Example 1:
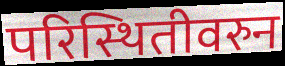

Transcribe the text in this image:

परिस्थितीवरुन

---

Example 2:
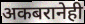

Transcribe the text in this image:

अकबरानेही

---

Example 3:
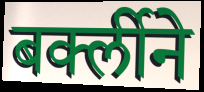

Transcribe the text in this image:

बर्क्लीने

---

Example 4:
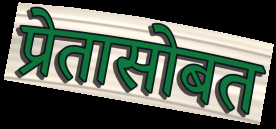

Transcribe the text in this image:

प्रेतासोबत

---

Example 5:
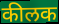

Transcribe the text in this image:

कीलक